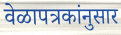
वेळापत्रकांनुसार